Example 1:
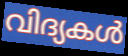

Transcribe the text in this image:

വിദ്യകൾ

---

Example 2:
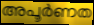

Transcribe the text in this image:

അപൂർണത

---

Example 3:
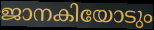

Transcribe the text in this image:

ജാനകിയോടും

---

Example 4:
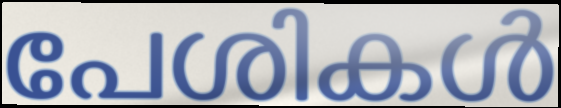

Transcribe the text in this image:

പേശികൾ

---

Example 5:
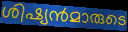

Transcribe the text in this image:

ശിഷ്യൻമാരുടെ